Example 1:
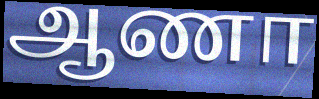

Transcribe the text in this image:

ஆணா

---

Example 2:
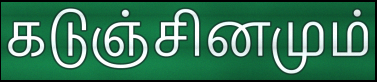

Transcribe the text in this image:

கடுஞ்சினமும்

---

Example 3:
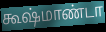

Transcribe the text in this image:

கூஷ்மாண்டா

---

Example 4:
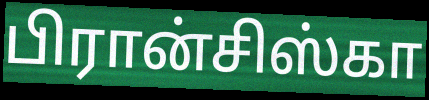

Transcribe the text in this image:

பிரான்சிஸ்கா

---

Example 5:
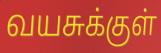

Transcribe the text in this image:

வயசுக்குள்